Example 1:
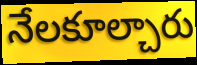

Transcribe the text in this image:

నేలకూల్చారు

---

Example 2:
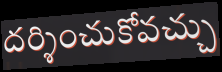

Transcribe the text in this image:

దర్శించుకోవచ్చు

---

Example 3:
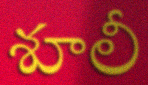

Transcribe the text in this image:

శూలీ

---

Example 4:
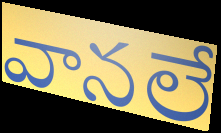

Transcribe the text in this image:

వానలే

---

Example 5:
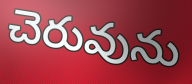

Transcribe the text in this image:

చెరువును